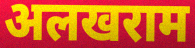
अलखराम